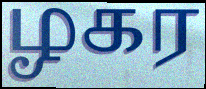
ழகர